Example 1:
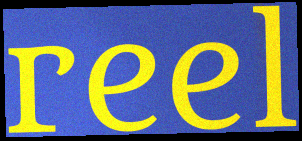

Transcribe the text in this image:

reel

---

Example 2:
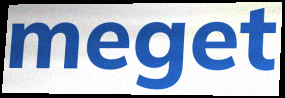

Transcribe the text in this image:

meget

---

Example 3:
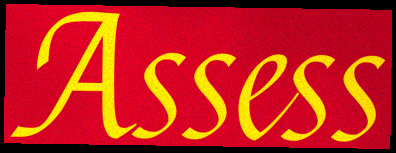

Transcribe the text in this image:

Assess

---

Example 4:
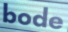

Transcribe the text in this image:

bode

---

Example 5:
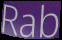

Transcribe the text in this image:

Rab